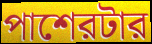
পাশেরটার